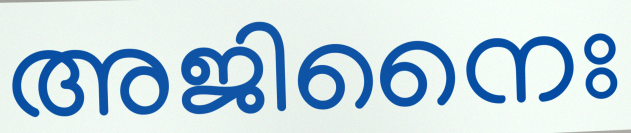
അജിനൈഃ